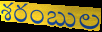
శరంబుల